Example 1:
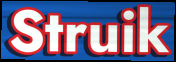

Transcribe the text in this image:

Struik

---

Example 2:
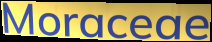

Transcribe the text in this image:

Moraceae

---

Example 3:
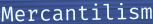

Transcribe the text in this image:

Mercantilism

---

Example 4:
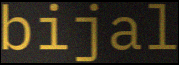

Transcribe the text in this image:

bijal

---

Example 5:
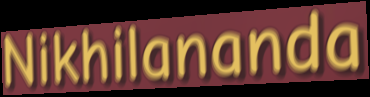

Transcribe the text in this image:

Nikhilananda